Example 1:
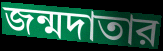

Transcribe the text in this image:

জন্মদাতার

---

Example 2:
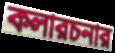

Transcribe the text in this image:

কলারচনার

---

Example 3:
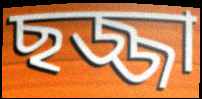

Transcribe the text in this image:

ছজ্জা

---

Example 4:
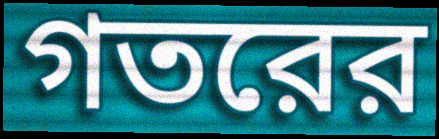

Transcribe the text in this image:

গতরের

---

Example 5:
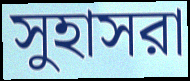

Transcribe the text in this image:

সুহাসরা